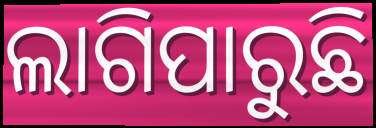
ଲାଗିପାରୁଛି